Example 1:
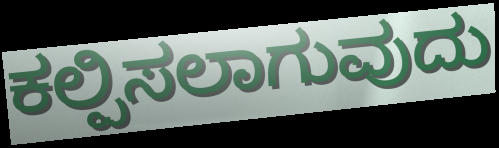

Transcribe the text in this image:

ಕಲ್ಪಿಸಲಾಗುವುದು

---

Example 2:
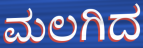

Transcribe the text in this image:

ಮಲಗಿದ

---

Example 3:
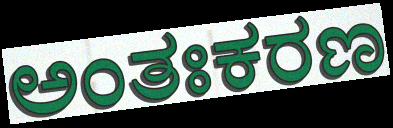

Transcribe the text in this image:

ಅಂತಃಕರಣ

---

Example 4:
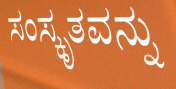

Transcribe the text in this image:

ಸಂಸ್ಕೃತವನ್ನು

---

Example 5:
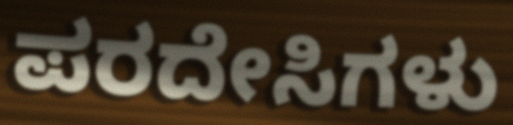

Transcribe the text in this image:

ಪರದೇಸಿಗಳು